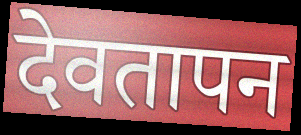
देवतापन